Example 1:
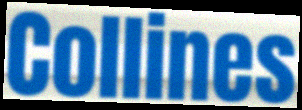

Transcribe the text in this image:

Collines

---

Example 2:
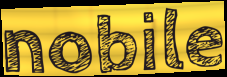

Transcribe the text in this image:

nobile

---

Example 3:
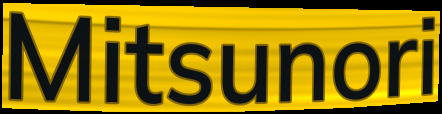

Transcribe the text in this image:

Mitsunori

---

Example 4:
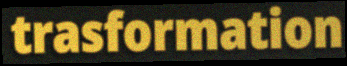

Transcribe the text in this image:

trasformation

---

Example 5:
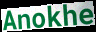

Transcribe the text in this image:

Anokhe